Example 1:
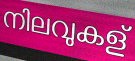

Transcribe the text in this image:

നിലവുകള്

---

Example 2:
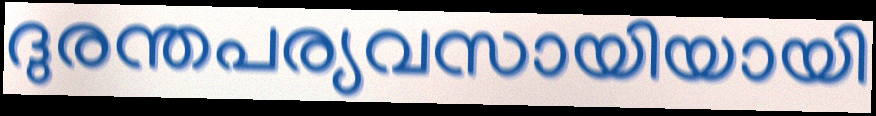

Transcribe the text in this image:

ദുരന്തപര്യവസായിയായി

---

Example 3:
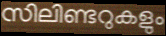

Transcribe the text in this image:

സിലിണ്ടറുകളും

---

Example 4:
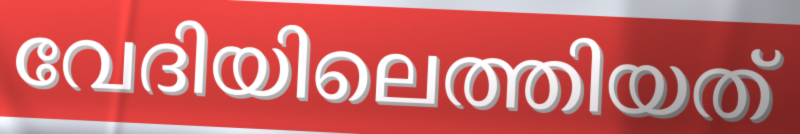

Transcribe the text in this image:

വേദിയിലെത്തിയത്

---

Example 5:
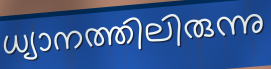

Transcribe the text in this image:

ധ്യാനത്തിലിരുന്നു